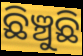
ଛିଞ୍ଚୁଛି